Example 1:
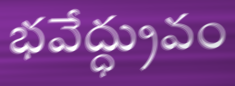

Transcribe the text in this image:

భవేద్ధ్రువం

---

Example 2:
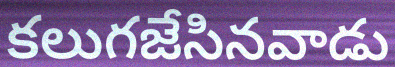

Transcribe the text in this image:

కలుగజేసినవాడు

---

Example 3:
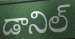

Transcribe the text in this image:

డానిల్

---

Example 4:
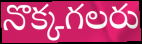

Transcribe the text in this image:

నొక్కగలరు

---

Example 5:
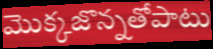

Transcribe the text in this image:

మొక్కజొన్నతోపాటు